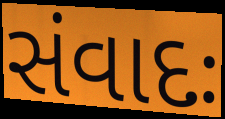
સંવાદઃ